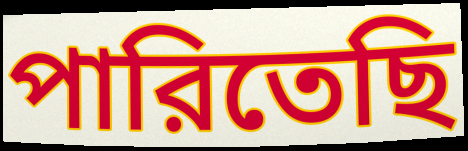
পারিতেছি